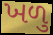
ખળુ